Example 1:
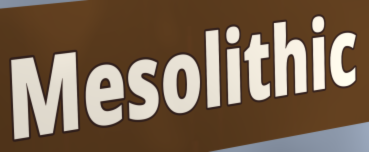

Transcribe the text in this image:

Mesolithic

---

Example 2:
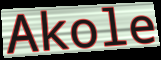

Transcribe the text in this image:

Akole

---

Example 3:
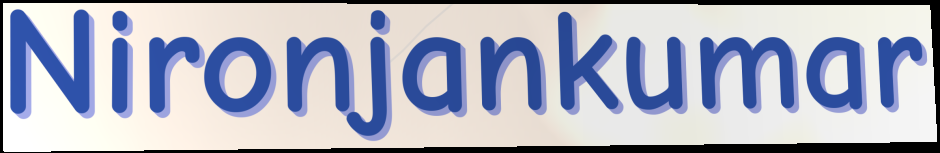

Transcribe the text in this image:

Nironjankumar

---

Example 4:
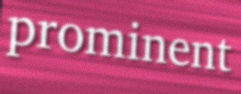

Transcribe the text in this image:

prominent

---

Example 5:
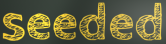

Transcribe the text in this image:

seeded